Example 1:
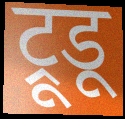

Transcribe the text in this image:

ट्रूडू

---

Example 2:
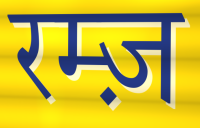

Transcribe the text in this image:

रम्ज़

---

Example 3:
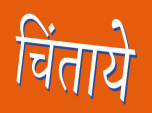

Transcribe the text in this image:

चिंताये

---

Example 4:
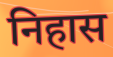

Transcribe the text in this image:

निहास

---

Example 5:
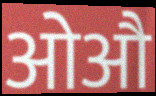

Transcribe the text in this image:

ओऔ